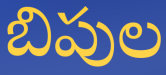
బిపుల